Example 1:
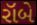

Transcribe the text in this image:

રૉબે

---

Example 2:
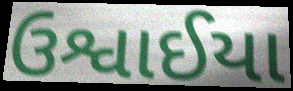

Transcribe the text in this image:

ઉશ્વાઈયા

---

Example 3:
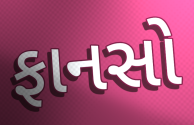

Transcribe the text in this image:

ફાનસો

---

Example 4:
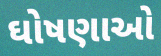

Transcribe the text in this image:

ઘોષણાઓ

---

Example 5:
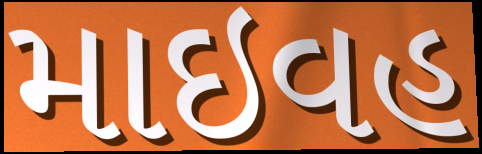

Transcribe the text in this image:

માઇવહ